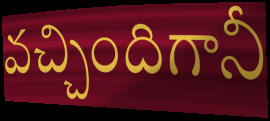
వచ్చిందిగానీ